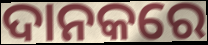
ଦାନକରେ